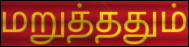
மறுத்ததும்